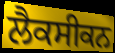
ਲੈਕਸੀਕਨ